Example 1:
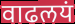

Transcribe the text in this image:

वाढलयं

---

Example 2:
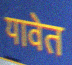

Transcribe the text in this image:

यावेत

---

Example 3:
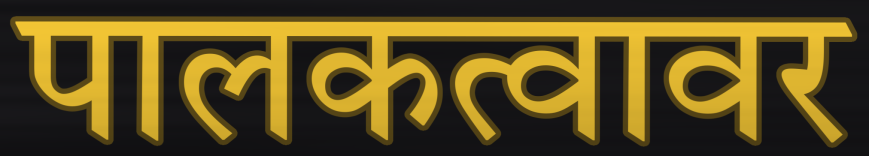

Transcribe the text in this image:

पालकत्वावर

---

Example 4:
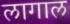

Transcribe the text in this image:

लागाल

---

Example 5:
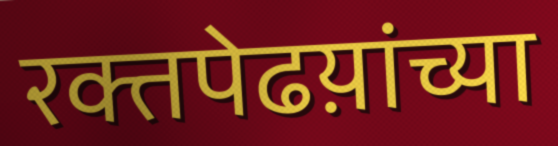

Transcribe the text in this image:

रक्तपेढय़ांच्या